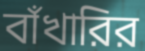
বাঁখারির